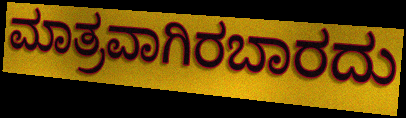
ಮಾತ್ರವಾಗಿರಬಾರದು